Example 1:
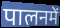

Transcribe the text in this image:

पालनमें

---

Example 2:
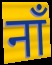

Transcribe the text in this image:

नाँ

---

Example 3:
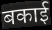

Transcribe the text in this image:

बकाई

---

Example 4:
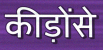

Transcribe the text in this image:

कीड़ोंसे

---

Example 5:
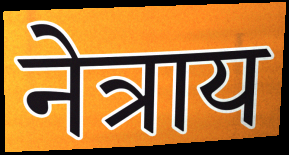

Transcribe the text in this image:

नेत्राय